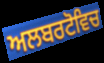
ਅਲਬਰਟੋਵਿਚ